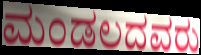
ಮಂಡಲದವರು